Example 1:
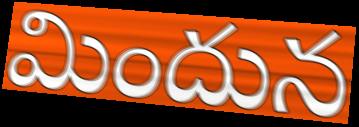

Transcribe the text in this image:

మిందున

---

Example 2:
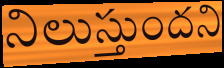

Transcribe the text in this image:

నిలుస్తుందని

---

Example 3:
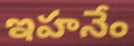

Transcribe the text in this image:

ఇహనేం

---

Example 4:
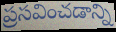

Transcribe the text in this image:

ప్రసవించడాన్ని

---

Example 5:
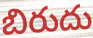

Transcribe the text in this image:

బిరుదు